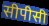
सीपीसी